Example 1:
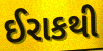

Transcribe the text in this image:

ઈરાકથી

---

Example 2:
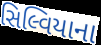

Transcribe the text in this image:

સિલ્વિયાના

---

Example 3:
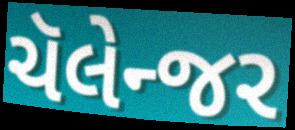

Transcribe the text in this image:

ચૅલેન્જર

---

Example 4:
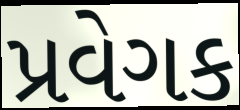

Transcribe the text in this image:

પ્રવેગક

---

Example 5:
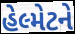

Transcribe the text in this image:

હેલ્મેટને